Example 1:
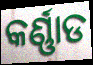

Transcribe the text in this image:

କର୍ଣ୍ଣାଡ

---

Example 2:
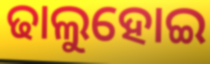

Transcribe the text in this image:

ଢାଲୁହୋଇ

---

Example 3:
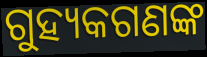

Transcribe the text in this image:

ଗୁହ୍ୟକଗଣଙ୍କ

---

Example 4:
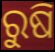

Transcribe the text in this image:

ରୁଷି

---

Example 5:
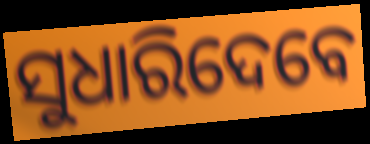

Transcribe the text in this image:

ସୁଧାରିଦେବେ